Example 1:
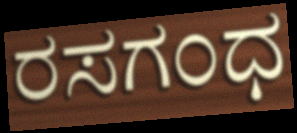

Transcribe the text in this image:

ರಸಗಂಧ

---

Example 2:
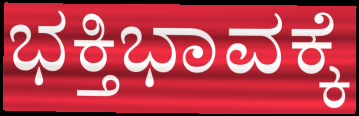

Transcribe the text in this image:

ಭಕ್ತಿಭಾವಕ್ಕೆ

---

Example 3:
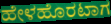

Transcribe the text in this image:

ಹೇಳಹೊರಟಾಗ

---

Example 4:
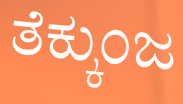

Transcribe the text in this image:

ತೆಕ್ಕುಂಜ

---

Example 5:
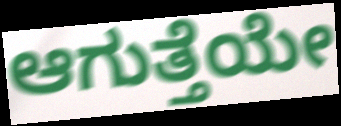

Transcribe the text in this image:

ಆಗುತ್ತೆಯೇ